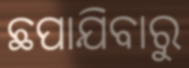
ଛପାଯିବାରୁ